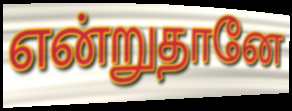
என்றுதானே